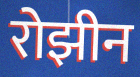
रोझीन